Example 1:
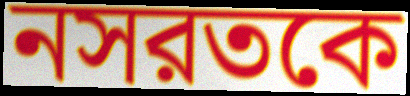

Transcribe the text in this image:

নসরতকে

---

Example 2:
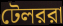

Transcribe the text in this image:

টেলররা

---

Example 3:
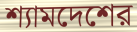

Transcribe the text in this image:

শ্যামদেশের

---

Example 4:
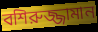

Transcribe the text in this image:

বশিরুজ্জামান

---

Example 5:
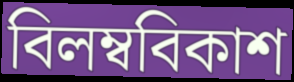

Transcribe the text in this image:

বিলম্ববিকাশ